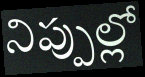
నిప్పుల్లో